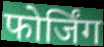
फोर्जिंग